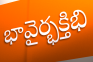
భావైర్భక్తిభి